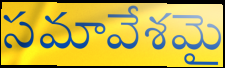
సమావేశమై